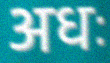
अधः